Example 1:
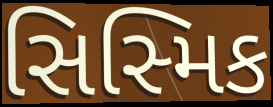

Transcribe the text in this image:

સિસ્મિક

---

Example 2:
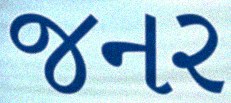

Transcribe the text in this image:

જનર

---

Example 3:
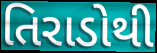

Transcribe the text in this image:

તિરાડોથી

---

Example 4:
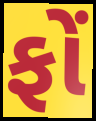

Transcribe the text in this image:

ફોં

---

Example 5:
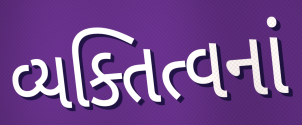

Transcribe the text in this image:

વ્યક્તિત્વનાં